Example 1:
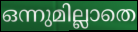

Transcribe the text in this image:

ഒന്നുമില്ലാതെ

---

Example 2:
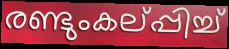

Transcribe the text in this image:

രണ്ടുംകല്പ്പിച്ച്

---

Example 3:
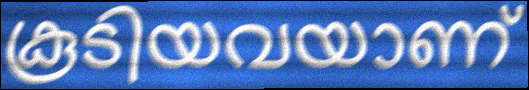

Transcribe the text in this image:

കൂടിയവയാണ്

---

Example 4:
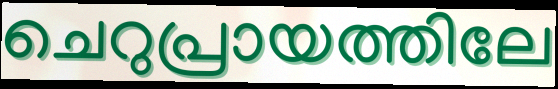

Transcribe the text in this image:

ചെറുപ്രായത്തിലേ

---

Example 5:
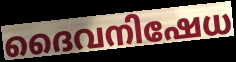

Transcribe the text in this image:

ദൈവനിഷേധ